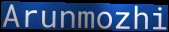
Arunmozhi